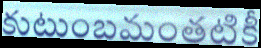
కుటుంబమంతటికీ